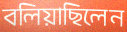
বলিয়াছিলেন